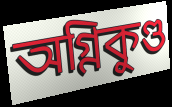
অগ্নিকুণ্ড